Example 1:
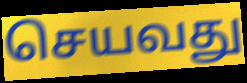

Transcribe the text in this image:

செயவது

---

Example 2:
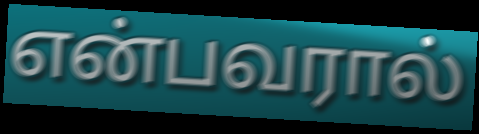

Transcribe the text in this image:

என்பவரால்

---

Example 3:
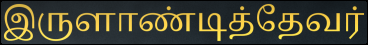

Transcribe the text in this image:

இருளாண்டித்தேவர்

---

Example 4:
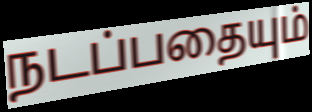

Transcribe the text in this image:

நடப்பதையும்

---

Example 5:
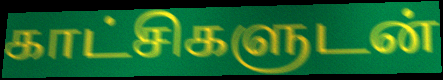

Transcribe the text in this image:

காட்சிகளுடன்